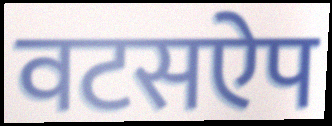
वटसऐप